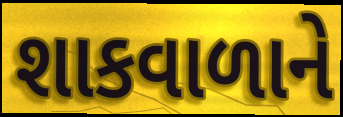
શાકવાળાને